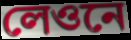
লেওনে